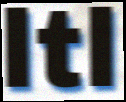
ltl